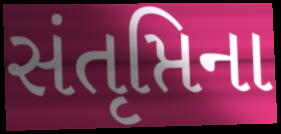
સંતૃપ્તિના